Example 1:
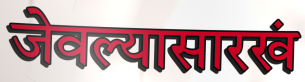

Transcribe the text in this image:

जेवल्यासारखं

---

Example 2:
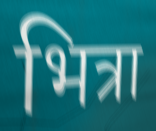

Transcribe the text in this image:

भित्रा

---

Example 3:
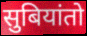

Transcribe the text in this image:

सुबियांतो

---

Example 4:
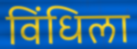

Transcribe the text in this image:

विंधिला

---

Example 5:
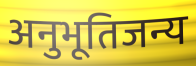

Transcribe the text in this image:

अनुभूतिजन्य